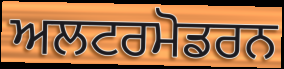
ਅਲਟਰਮੋਡਰਨ